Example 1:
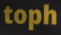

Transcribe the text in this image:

toph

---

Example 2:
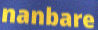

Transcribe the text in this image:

nanbare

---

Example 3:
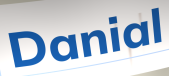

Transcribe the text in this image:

Danial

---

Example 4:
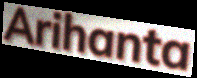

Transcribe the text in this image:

Arihanta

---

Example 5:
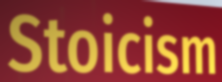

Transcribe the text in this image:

Stoicism